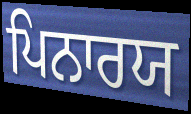
ਪਿਨਾਰਯ